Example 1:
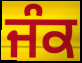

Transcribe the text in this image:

ਜੰਕ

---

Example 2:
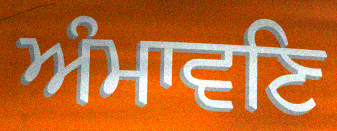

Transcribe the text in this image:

ਅੰਮਾਵਣਿ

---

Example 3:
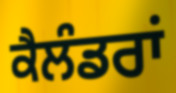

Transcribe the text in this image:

ਕੈਲੰਡਰਾਂ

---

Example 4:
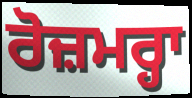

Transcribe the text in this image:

ਰੋਜ਼ਮਰ੍ਹਾ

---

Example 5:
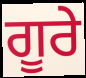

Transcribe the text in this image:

ਗੂਰੇ